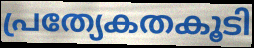
പ്രത്യേകതകൂടി